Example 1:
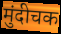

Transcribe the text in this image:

मुंदीचक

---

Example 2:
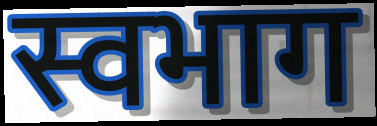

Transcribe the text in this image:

स्वभाग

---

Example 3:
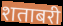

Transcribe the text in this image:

शताबरी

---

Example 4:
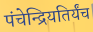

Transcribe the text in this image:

पंचेन्द्रियतिर्यंच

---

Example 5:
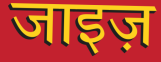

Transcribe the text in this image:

जाइज़